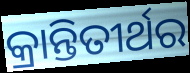
କ୍ରାନ୍ତିତୀର୍ଥର